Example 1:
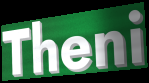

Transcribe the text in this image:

Theni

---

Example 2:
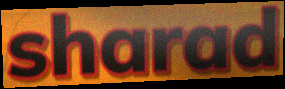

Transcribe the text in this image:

sharad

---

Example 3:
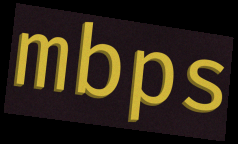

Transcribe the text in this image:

mbps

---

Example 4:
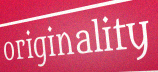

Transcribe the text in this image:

originality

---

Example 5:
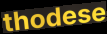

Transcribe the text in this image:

thodese